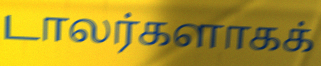
டாலர்களாகக்